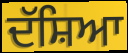
ਦੱਸ਼ਿਆ